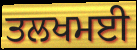
ਤਲਖਮਈ